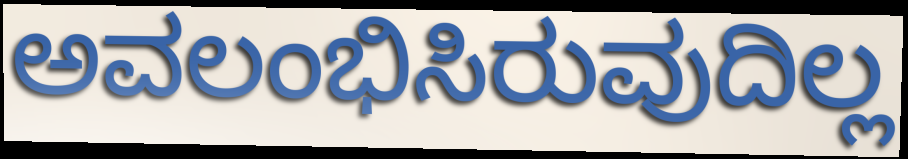
ಅವಲಂಭಿಸಿರುವುದಿಲ್ಲ